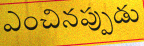
ఎంచినప్పుడు